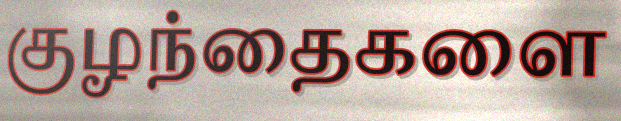
குழந்தைகளை